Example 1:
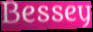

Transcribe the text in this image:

Bessey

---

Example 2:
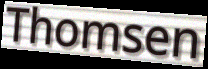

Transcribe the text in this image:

Thomsen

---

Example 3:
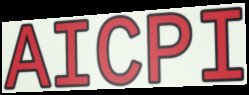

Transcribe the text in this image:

AICPI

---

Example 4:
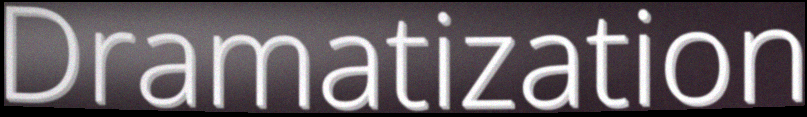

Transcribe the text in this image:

Dramatization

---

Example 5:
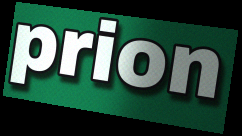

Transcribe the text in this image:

prion